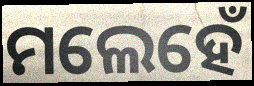
ମଲେହେଁ